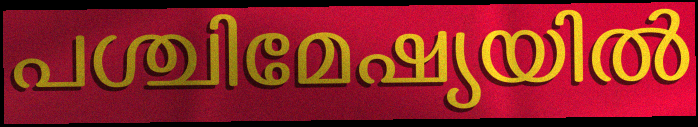
പശ്ചിമേഷ്യയിൽ